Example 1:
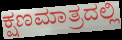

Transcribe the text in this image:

ಕ್ಷಣಮಾತ್ರದಲ್ಲಿ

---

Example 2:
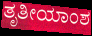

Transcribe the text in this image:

ತೃತೀಯಾಂಶ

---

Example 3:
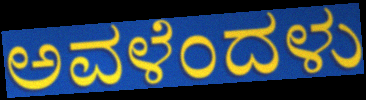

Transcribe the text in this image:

ಅವಳೆಂದಳು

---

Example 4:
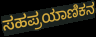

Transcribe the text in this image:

ಸಹಪ್ರಯಾಣಿಕನ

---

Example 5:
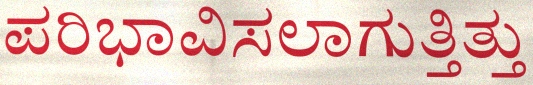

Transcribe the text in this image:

ಪರಿಭಾವಿಸಲಾಗುತ್ತಿತ್ತು